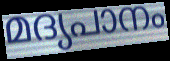
മദ്യപാനം